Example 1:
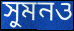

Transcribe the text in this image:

সুমনও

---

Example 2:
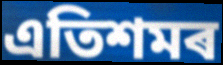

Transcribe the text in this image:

এতিশমৰ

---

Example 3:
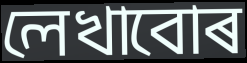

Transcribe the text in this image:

লেখাবোৰ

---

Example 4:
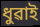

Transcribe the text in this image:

ধুৱাই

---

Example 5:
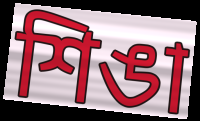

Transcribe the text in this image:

শিঙা